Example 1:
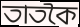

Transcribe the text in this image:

তাতকৈ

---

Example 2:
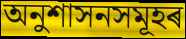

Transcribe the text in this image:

অনুশাসনসমূহৰ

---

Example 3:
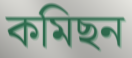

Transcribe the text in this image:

কমিছন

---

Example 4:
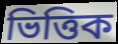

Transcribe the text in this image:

ভিত্তিক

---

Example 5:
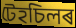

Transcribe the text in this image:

টেহচিলৰ